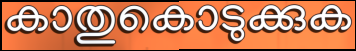
കാതുകൊടുക്കുക